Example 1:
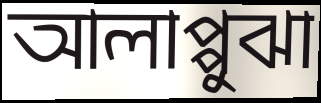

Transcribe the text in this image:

আলাপ্পুঝা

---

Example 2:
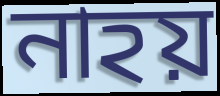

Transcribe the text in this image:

নাহয়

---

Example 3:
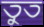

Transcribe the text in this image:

তুত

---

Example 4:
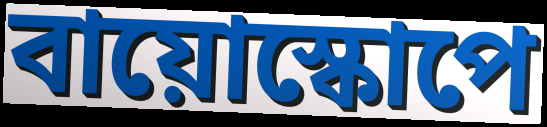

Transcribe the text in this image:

বায়োস্কোপে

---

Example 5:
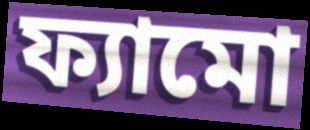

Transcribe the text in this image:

ফ্যামো